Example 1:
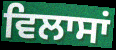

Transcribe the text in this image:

ਵਿਲਾਸਾਂ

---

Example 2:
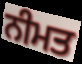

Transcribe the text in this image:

ਨੀਮਤ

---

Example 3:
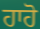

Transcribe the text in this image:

ਹਾਹੋ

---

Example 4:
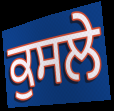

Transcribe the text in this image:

ਕੁਸਲੇ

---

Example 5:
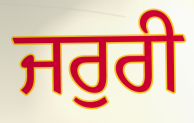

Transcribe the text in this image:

ਜਰੁਰੀ